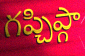
గప్చిప్గా